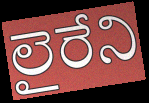
లైరేని